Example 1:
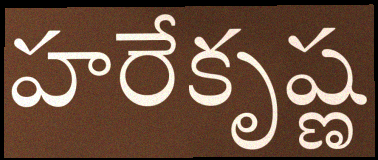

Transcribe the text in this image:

హరేకృష్ణ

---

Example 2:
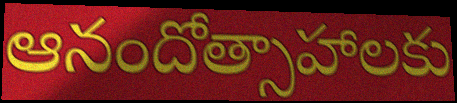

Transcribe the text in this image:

ఆనందోత్సాహాలకు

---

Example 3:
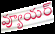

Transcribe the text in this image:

వ్యూయర్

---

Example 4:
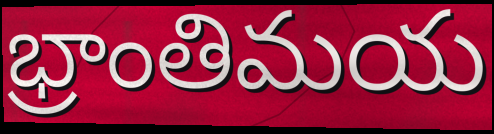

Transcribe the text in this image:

భ్రాంతిమయ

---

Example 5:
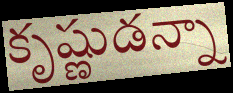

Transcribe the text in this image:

కృష్ణుడన్నా